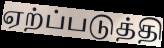
ஏற்ப்படுத்தி